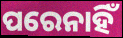
ପରେନାହିଁ